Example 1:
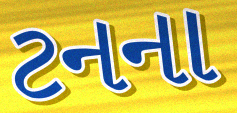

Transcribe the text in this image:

ટનના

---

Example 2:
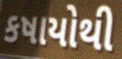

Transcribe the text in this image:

કષાયોથી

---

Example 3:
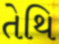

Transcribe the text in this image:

તેથિ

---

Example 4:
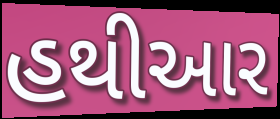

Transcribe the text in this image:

હથીઆર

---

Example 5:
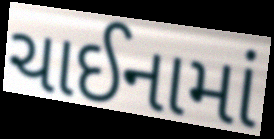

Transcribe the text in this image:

ચાઈનામાં